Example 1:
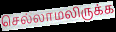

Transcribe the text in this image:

செல்லாமலிருக்க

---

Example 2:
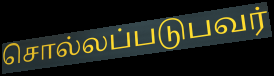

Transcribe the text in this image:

சொல்லப்படுபவர்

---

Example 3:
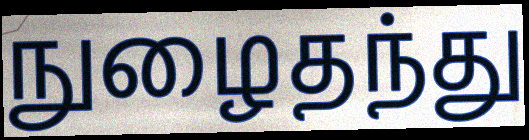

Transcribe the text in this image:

நுழைதந்து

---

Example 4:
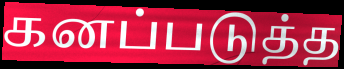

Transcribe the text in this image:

கனப்படுத்த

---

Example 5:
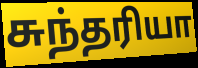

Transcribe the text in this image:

சுந்தரியா